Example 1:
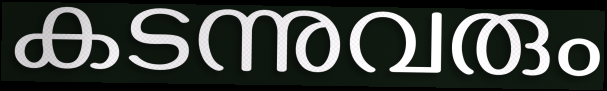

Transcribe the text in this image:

കടന്നുവരും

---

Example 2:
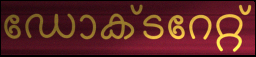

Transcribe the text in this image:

ഡോക്ടറേറ്റ്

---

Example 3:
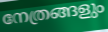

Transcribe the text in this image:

നേത്രങ്ങളും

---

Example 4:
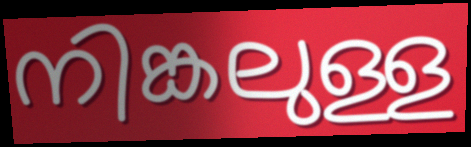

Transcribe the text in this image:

നിങ്കലുള്ള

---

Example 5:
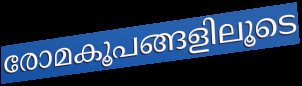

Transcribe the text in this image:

രോമകൂപങ്ങളിലൂടെ